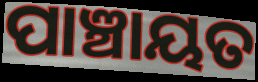
ପାଞ୍ଚାୟତ